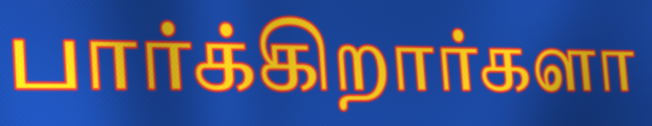
பார்க்கிறார்களா